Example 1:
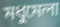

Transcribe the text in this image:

মধুমেলা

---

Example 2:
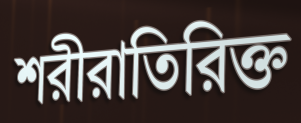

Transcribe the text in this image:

শরীরাতিরিক্ত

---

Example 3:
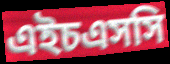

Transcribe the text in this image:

এইচএসসি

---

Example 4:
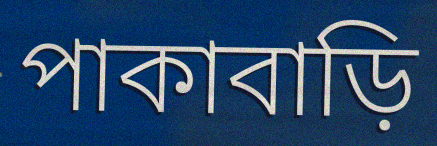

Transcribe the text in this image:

পাকাবাড়ি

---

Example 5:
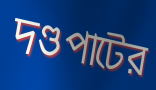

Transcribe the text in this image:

দণ্ডপাটের